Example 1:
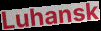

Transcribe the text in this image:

Luhansk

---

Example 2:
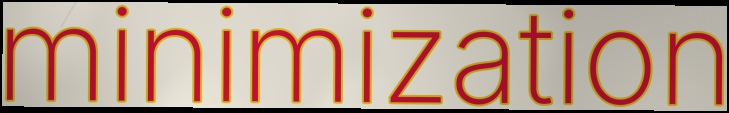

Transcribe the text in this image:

minimization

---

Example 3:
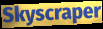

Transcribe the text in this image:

Skyscraper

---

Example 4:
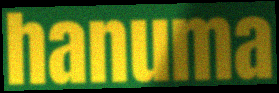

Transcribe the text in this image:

hanuma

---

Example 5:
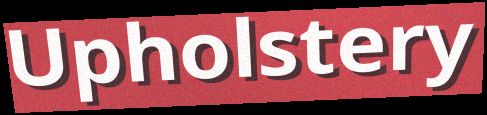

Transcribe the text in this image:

Upholstery